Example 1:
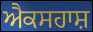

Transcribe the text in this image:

ਐਕਸਹਾਸ਼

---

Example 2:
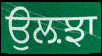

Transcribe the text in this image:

ਉਲ਼ਝਾ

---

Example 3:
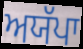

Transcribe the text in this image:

ਅਯੱਪਾ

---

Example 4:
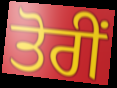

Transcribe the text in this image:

ਤੋਰੀਂ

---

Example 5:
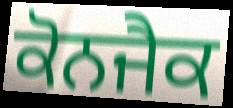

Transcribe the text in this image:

ਕੋਨਜੈਕ